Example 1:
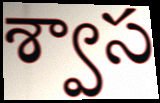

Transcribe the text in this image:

శ్వాస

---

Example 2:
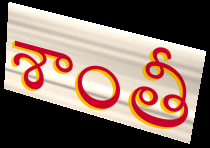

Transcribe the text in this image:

శాంతీ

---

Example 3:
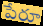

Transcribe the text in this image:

పేరూ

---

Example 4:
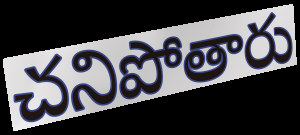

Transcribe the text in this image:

చనిపోతారు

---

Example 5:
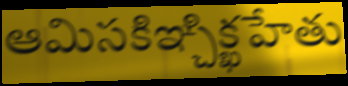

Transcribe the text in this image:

ఆమిసకిఞ్చిక్ఖహేతు